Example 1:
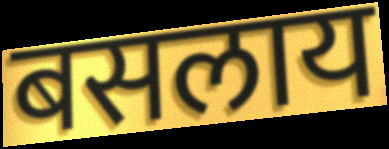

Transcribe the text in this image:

बसलाय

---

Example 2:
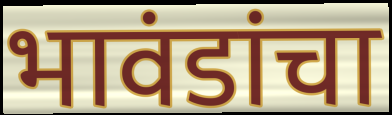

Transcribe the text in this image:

भावंडांचा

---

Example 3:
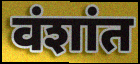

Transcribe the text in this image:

वंशांत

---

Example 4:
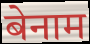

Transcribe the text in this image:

बेनाम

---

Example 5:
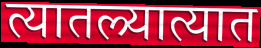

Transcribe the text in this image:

त्यातल्यात्यात